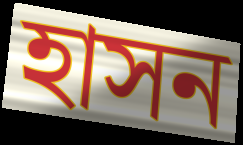
হাসন